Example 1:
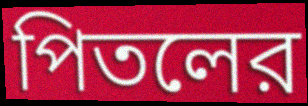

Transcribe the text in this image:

পিতলের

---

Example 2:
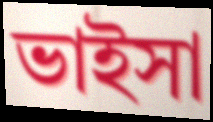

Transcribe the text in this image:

ভাইসা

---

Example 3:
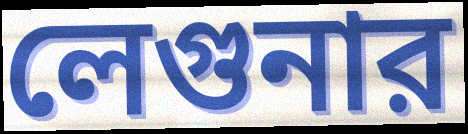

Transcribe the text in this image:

লেগুনার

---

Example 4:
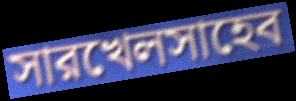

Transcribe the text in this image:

সারখেলসাহেব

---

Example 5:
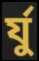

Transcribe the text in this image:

র্যু